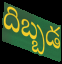
దిబ్బడ